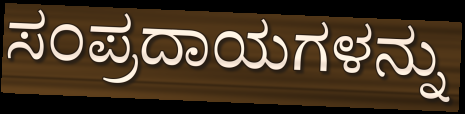
ಸಂಪ್ರದಾಯಗಳನ್ನು